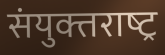
संयुक्तराष्ट्र